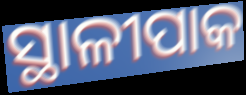
ସ୍ଥାଳୀପାକ